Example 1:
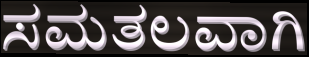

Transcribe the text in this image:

ಸಮತಲವಾಗಿ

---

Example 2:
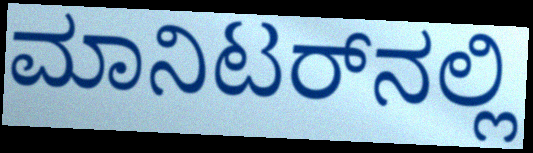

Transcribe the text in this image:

ಮಾನಿಟರ್‌ನಲ್ಲಿ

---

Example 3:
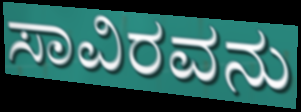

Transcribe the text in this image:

ಸಾವಿರವನು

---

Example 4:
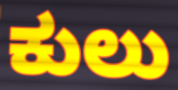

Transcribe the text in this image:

ಕುಲು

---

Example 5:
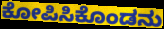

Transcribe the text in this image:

ಕೋಪಿಸಿಕೊಂಡನು